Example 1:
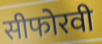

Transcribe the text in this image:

सीफोरवी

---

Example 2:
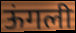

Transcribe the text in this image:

ऊंगली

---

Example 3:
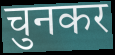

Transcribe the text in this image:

चुनकर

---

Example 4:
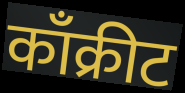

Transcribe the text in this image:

काँक्रीट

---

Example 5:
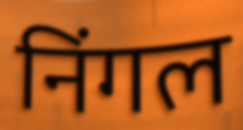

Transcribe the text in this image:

निंगल